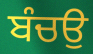
ਬੰਚਉ